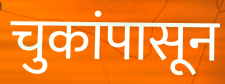
चुकांपासून